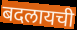
बदलायची